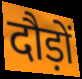
दौड़ों